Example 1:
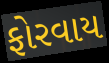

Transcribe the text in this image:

ફોરવાય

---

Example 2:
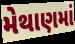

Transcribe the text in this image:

મેથાણમાં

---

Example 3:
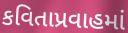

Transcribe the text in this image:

કવિતાપ્રવાહમાં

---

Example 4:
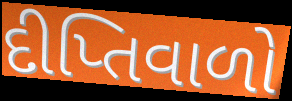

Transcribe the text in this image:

દીપ્તિવાળો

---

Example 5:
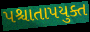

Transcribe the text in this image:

પશ્ચાતાપયુક્ત